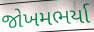
જોખમભર્યા